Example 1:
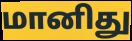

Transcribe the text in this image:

மானிது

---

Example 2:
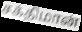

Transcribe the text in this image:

சக்திமான்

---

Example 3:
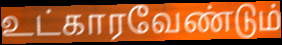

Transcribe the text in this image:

உட்காரவேண்டும்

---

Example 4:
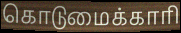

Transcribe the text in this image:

கொடுமைக்காரி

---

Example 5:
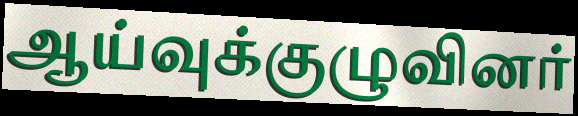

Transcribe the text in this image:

ஆய்வுக்குழுவினர்